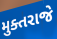
મુક્તરાજે